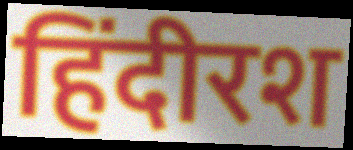
हिंदीरश